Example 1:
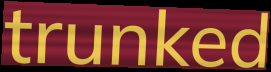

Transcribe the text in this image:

trunked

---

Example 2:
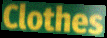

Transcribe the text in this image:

Clothes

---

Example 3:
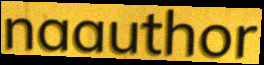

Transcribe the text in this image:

naauthor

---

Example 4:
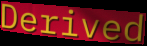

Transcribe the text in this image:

Derived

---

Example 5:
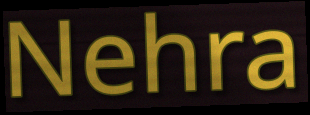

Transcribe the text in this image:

Nehra